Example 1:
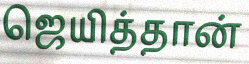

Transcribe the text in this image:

ஜெயித்தான்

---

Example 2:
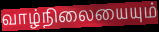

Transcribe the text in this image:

வாழ்நிலையையும்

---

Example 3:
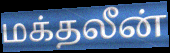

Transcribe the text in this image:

மக்தலீன்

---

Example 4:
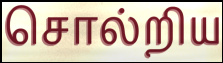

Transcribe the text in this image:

சொல்றிய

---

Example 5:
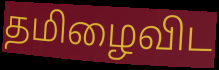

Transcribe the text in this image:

தமிழைவிட